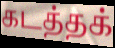
கடத்தக்